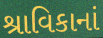
શ્રાવિકાનાં